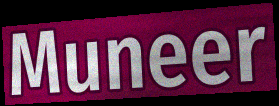
Muneer